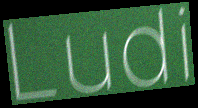
Ludi